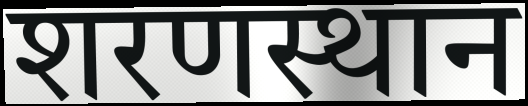
शरणस्थान